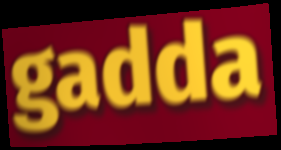
gadda